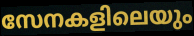
സേനകളിലെയും